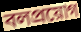
বলপ্রয়োগ